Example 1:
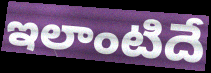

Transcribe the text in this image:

ఇలాంటిదే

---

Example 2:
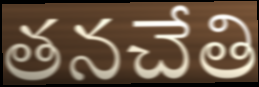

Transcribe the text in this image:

తనచేతి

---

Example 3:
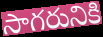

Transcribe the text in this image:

సాగరునికి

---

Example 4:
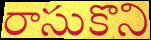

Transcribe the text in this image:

రాసుకొని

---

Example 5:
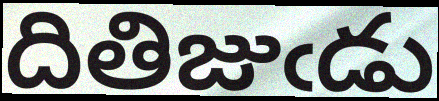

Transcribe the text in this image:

దితిజుఁడు